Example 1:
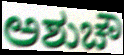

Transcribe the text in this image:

ಅಶುಚೌ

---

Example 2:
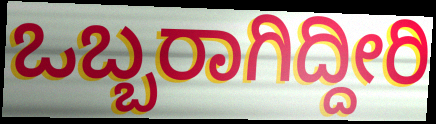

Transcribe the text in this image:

ಒಬ್ಬರಾಗಿದ್ದೀರಿ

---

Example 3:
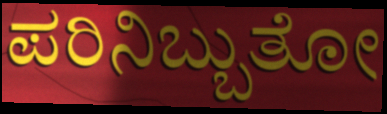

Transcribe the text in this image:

ಪರಿನಿಬ್ಬುತೋ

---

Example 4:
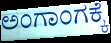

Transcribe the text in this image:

ಅಂಗಾಂಗಕ್ಕೆ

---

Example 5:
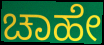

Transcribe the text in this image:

ಚಾಹೇ